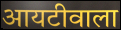
आयटीवाला